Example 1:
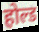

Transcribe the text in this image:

होल्ड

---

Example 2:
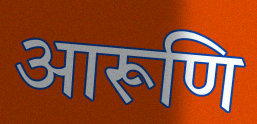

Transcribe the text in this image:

आरूणि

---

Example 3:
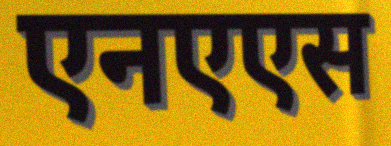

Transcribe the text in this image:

एनएएस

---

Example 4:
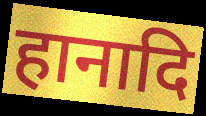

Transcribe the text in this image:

हानादि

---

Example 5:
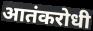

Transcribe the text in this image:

आतंकरोधी